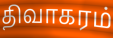
திவாகரம்